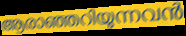
ആരാഞ്ഞറിയുന്നവൻ